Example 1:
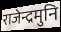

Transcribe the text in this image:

राजेन्द्रमुनि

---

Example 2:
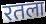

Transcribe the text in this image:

रतला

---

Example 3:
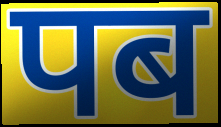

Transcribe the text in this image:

पब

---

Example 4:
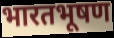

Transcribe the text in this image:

भारतभूषण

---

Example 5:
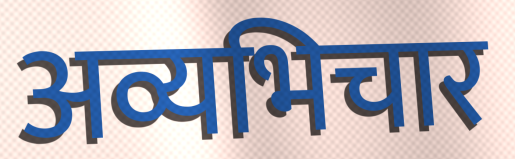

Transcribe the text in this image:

अव्यभिचार